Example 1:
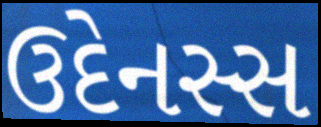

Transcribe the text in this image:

ઉદેનસ્સ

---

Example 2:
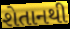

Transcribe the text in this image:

શેતાનથી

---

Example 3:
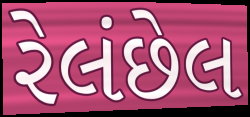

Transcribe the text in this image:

રેલંછેલ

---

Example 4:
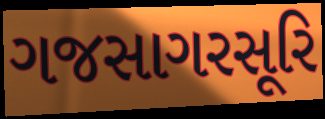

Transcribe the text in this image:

ગજસાગરસૂરિ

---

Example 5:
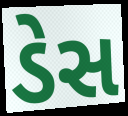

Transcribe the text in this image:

ડેસ